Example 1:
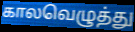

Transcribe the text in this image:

காலவெழுத்து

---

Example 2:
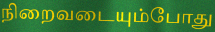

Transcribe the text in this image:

நிறைவடையும்போது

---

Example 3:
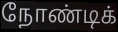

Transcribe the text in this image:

நோண்டிக்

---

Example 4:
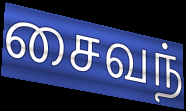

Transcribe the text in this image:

சைவந்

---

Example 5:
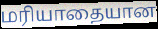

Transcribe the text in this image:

மரியாதையான